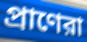
প্রাণেরা